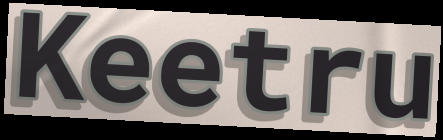
Keetru